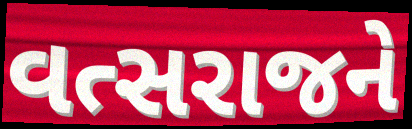
વત્સરાજને